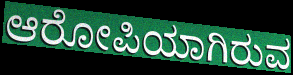
ಆರೋಪಿಯಾಗಿರುವ